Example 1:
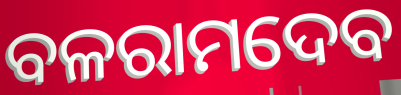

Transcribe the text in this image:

ବଳରାମଦେବ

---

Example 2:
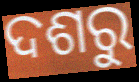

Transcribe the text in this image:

ଦଶରୁ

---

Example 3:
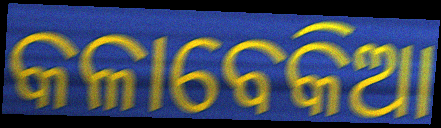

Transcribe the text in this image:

କଳାବେକିଆ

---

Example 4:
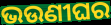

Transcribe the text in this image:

ଭଉଣୀଘର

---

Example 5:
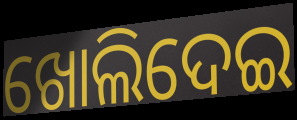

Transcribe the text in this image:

ଖୋଲିଦେଇ